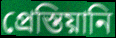
প্রেস্তিয়ানি